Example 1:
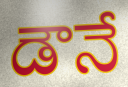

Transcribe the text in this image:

డౌనే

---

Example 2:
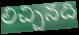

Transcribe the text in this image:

లిచ్చినది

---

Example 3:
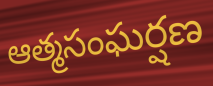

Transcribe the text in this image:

ఆత్మసంఘర్షణ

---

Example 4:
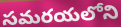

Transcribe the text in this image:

సమరయలోని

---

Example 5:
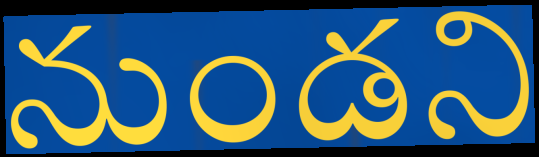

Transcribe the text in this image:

నుండని